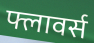
फ्लावर्स